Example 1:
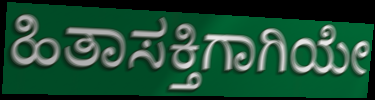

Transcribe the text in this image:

ಹಿತಾಸಕ್ತಿಗಾಗಿಯೇ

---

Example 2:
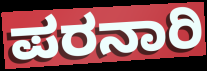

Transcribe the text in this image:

ಪರನಾರಿ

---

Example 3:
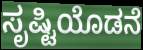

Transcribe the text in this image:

ಸೃಷ್ಟಿಯೊಡನೆ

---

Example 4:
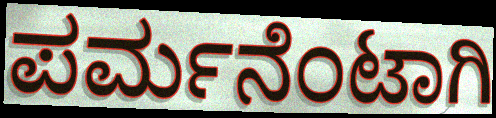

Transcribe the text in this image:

ಪರ್ಮನೆಂಟಾಗಿ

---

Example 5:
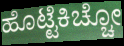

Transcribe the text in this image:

ಹೊಟ್ಟೆಕಿಚ್ಚೋ